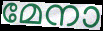
മേനാ